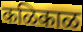
कळिकाळ